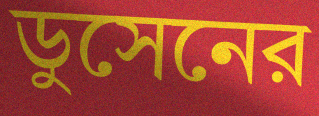
ডুসেনের